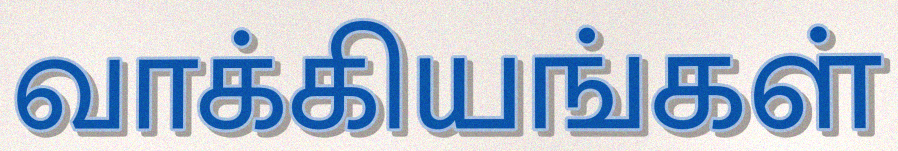
வாக்கியங்கள்